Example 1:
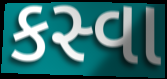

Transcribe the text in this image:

કસ્વા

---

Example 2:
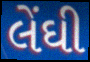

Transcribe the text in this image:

લેંઘી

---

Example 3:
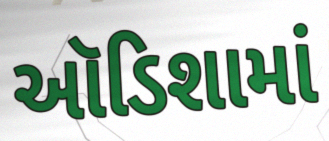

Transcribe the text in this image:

ઑડિશામાં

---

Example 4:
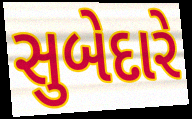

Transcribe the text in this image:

સુબેદારે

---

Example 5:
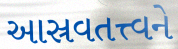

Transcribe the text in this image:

આસ્રવતત્ત્વને